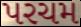
પરચમ